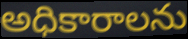
అధికారాలను